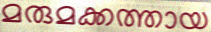
മരുമക്കത്തായ